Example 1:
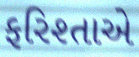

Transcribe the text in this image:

ફરિશ્તાએ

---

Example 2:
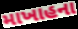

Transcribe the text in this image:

માખાહના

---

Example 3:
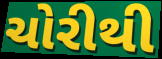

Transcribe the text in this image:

ચોરીથી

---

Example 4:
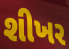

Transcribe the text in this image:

શીખર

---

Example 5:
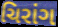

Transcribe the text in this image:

ચિરાંગ